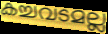
കച്ചവടമല്ല